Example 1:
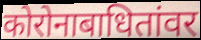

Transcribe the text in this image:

कोरोनाबाधितांवर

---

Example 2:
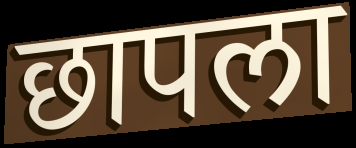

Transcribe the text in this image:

छापला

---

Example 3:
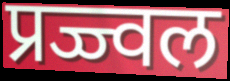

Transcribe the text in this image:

प्रज्ज्वल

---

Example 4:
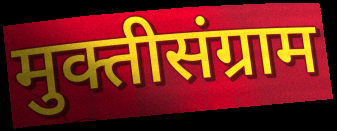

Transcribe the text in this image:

मुक्तीसंग्राम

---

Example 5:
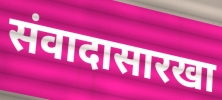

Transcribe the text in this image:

संवादासारखा